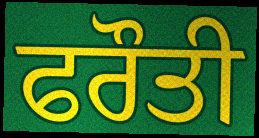
ਫਰੌਤੀ